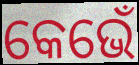
କେଭେଁ